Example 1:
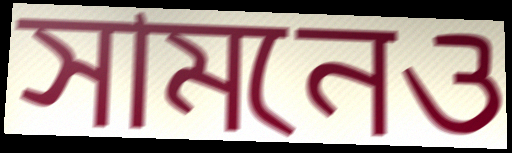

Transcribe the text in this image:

সামনেও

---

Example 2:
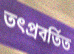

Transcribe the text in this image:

তৎপ্রবর্তিত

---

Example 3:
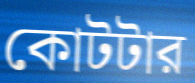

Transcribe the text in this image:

কোটটার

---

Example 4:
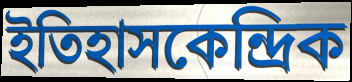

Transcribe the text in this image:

ইতিহাসকেন্দ্রিক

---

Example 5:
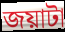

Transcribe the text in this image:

জয়াটা